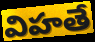
విహతే